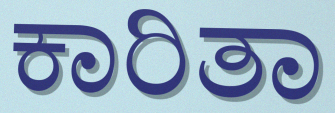
ಕಾರಿತಾ